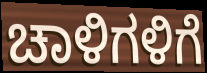
ಚಾಳಿಗಳಿಗೆ